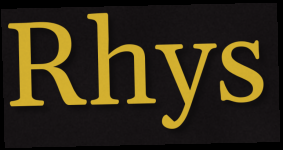
Rhys